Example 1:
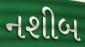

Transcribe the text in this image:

નશીબ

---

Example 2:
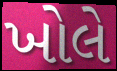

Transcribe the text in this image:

ખોલે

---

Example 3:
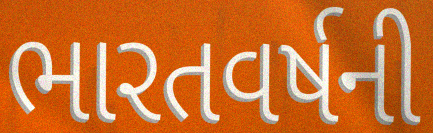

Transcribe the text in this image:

ભારતવર્ષની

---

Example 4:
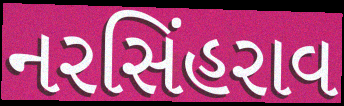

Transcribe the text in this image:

નરસિંહરાવ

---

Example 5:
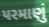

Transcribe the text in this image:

પરમાણું